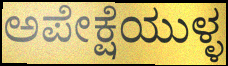
ಅಪೇಕ್ಷೆಯುಳ್ಳ